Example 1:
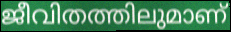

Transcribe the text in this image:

ജീവിതത്തിലുമാണ്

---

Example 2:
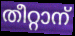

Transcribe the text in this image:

തീറ്റാന്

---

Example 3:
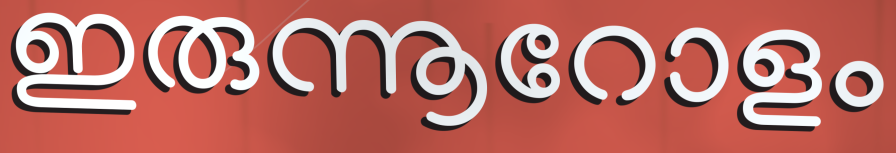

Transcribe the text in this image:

ഇരുന്നൂറോളം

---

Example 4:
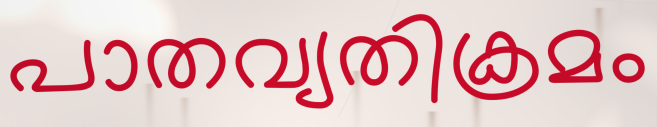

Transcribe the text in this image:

പാതവ്യതിക്രമം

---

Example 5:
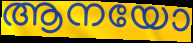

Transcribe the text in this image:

ആനയോ